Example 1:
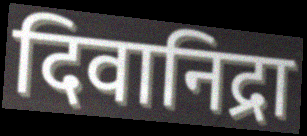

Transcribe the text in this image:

दिवानिद्रा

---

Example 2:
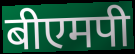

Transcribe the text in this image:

बीएमपी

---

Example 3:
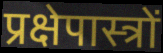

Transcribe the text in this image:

प्रक्षेपास्त्रों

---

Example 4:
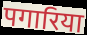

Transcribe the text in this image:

पगारिया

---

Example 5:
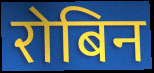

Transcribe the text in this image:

रोबिन